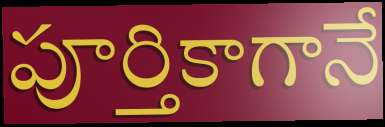
పూర్తికాగానే